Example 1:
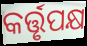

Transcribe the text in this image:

କର୍ତ୍ତୃପକ୍ଷ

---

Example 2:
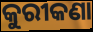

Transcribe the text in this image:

କୁରୀକଣା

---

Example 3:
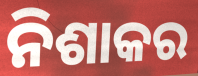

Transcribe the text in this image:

ନିଶାକର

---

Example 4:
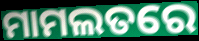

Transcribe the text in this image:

ମାମଲତରେ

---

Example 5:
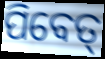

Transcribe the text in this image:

ପିବେତ୍